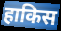
हाकिस